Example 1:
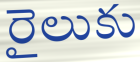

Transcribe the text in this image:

రైలుకు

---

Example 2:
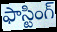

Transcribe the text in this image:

ఫాస్టింగ్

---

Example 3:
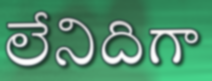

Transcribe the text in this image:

లేనిదిగా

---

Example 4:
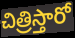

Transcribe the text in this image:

చిత్రిస్తారో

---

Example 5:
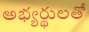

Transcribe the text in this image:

అభ్యర్థులతో